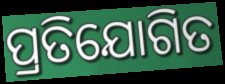
ପ୍ରତିଯୋଗିତ